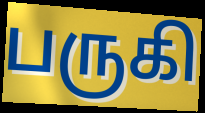
பருகி